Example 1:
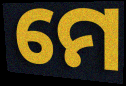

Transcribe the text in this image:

ମେ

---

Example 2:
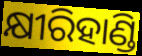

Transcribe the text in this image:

କ୍ଷୀରିହାଣ୍ଡି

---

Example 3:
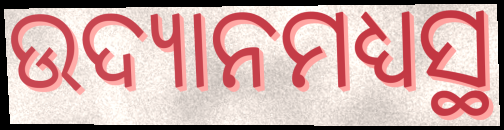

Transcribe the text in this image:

ଉଦ୍ୟାନମଧ୍ୟସ୍ଥ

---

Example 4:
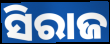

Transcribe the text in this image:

ସିରାଜ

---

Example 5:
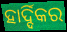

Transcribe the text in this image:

ହାର୍ଦ୍ଦିକର